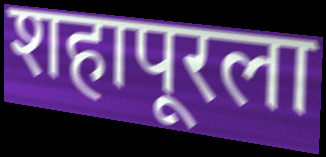
शहापूरला